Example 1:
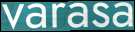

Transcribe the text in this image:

varasa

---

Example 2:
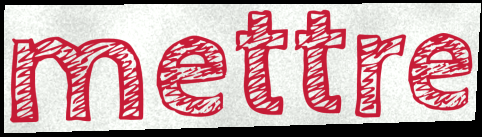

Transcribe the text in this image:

mettre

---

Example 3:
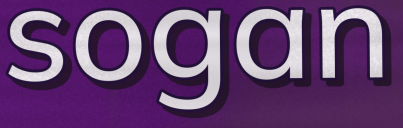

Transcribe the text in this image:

sogan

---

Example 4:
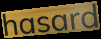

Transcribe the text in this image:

hasard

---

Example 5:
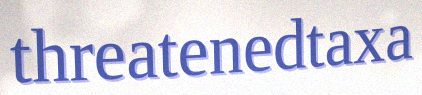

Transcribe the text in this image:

threatenedtaxa